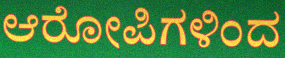
ಆರೋಪಿಗಳಿಂದ